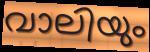
വാലിയും